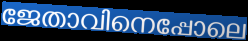
ജേതാവിനെപ്പോലെ